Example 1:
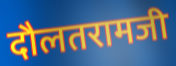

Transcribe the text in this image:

दौलतरामजी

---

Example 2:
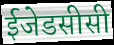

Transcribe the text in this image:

ईजेडसीसी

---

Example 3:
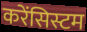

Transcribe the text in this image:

करेंसिस्टम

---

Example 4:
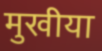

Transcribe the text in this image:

मुखीया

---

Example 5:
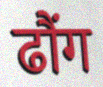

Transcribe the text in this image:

ढौंग